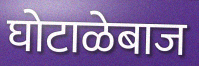
घोटाळेबाज